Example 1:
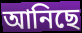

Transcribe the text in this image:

আনিছে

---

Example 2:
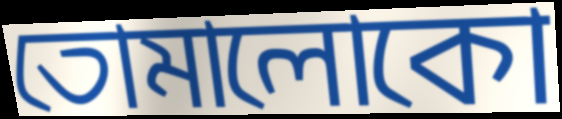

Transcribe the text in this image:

তোমালোকো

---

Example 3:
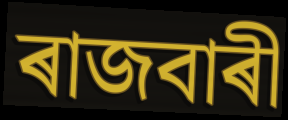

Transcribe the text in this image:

ৰাজবাৰী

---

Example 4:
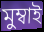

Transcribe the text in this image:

মুম্বাই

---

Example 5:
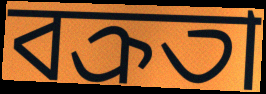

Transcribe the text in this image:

বক্ৰতা